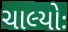
ચાલ્યોઃ